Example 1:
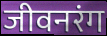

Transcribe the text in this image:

जीवनरंग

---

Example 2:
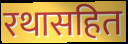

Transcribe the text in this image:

रथासहित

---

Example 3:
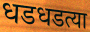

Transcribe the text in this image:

धडधडत्या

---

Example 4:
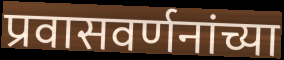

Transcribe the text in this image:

प्रवासवर्णनांच्या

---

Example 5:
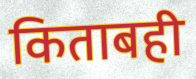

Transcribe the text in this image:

किताबही